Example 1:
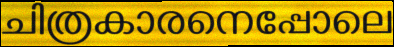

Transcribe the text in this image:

ചിത്രകാരനെപ്പോലെ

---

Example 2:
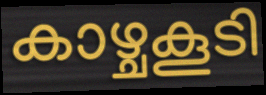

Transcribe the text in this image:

കാഴ്ചകൂടി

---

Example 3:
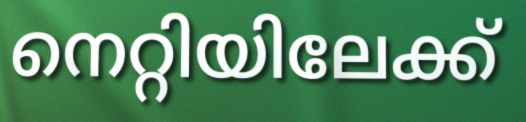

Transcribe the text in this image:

നെറ്റിയിലേക്ക്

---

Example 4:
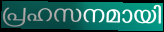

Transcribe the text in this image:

പ്രഹസനമായി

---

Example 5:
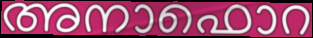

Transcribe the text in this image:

അനാഫൊറ